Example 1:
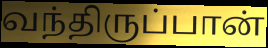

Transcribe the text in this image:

வந்திருப்பான்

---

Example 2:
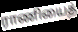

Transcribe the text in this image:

ராணியைத்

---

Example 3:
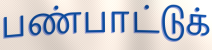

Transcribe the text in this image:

பண்பாட்டுக்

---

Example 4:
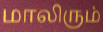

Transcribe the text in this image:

மாலிரும்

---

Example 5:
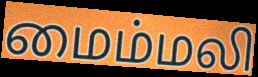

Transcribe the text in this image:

மைம்மலி